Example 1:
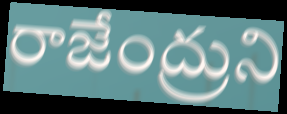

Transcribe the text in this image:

రాజేంద్రుని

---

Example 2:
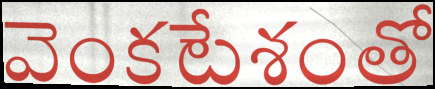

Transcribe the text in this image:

వెంకటేశంతో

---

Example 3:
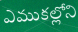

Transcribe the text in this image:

ఎముకల్లోని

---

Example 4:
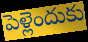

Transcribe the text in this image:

పెళ్లెందుకు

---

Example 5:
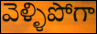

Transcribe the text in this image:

వెళ్ళిపోగా